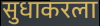
सुधाकरला